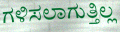
ಗಳಿಸಲಾಗುತ್ತಿಲ್ಲ